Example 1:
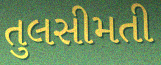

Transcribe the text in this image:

તુલસીમતી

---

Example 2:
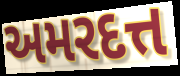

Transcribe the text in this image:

અમરદત્ત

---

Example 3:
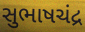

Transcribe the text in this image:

સુભાષચંદ્ર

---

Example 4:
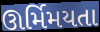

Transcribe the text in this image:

ઊર્મિમયતા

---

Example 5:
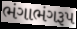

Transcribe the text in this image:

ભંગાભંગરૂપ